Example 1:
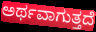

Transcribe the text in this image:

ಅರ್ಥವಾಗುತ್ತದೆ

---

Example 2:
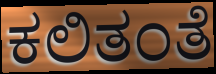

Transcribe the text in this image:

ಕಲಿತಂತೆ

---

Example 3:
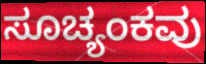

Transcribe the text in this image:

ಸೂಚ್ಯಂಕವು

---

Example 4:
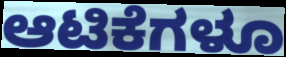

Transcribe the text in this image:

ಆಟಿಕೆಗಳೂ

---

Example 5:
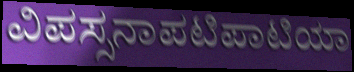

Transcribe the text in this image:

ವಿಪಸ್ಸನಾಪಟಿಪಾಟಿಯಾ